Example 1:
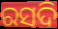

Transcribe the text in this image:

ରସଦି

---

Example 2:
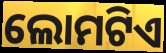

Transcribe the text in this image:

ଲୋମଟିଏ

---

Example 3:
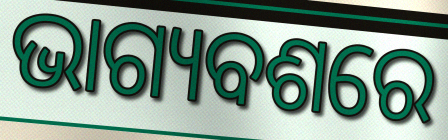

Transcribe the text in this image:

ଭାଗ୍ୟବଶରେ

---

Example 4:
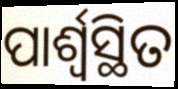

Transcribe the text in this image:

ପାର୍ଶ୍ୱସ୍ଥିତ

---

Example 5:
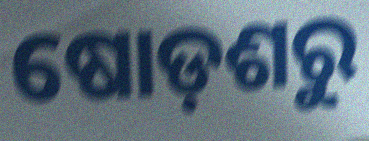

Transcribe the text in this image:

ଷୋଡ଼ଶରୁ